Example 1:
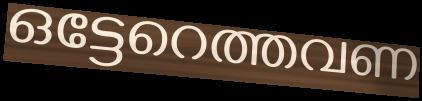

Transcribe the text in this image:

ഒട്ടേറെത്തവണ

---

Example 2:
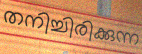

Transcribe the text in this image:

തനിച്ചിരിക്കുന്ന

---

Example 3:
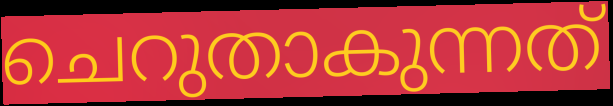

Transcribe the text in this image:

ചെറുതാകുന്നത്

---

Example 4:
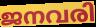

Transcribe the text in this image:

ജനവരി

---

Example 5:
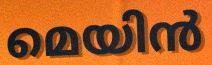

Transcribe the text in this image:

മെയിൻ